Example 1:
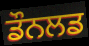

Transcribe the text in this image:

ਡੌਨਲਡ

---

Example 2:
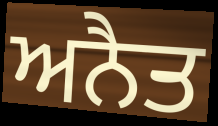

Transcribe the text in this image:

ਅਨੈਤ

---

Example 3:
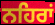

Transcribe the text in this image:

ਨਹਿਰਾਂ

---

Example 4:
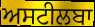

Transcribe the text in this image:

ਅਸਟੀਲਬਾ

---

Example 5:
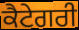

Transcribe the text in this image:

ਕੈਟੇਗਰੀ